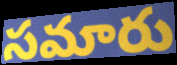
సమారు